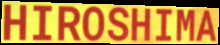
HIROSHIMA